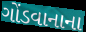
ગોંડવાનાના